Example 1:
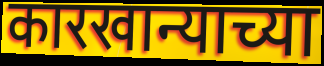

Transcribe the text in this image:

कारखान्याच्या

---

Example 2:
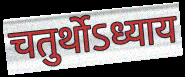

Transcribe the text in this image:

चतुर्थोऽध्याय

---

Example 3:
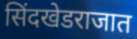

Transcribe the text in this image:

सिंदखेडराजात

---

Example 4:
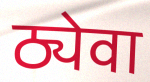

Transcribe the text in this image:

ठ्येवा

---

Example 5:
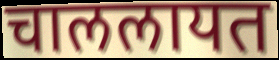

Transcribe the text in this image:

चाललायत